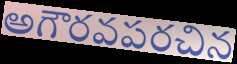
అగౌరవపరచిన